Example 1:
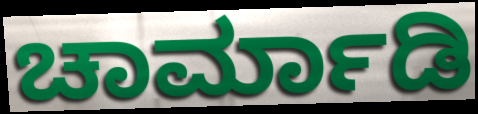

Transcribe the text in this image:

ಚಾರ್ಮಾಡಿ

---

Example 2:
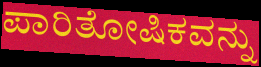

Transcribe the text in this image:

ಪಾರಿತೋಷಿಕವನ್ನು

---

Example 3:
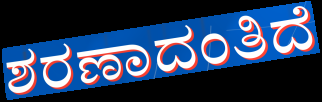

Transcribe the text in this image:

ಶರಣಾದಂತಿದೆ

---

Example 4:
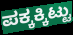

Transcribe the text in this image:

ಪಕ್ಕಕ್ಕಿಟ್ಟು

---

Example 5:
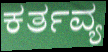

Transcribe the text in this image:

ಕರ್ತವ್ಯ